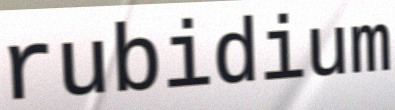
rubidium